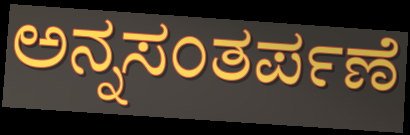
ಅನ್ನಸಂತರ್ಪಣೆ